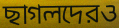
ছাগলদেরও